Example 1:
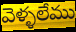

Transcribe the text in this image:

వెళ్ళలేము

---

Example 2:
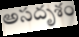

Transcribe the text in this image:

అసదృశం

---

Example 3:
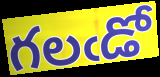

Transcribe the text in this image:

గలఁడో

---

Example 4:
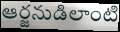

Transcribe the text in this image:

ఆర్జనుడిలాంటి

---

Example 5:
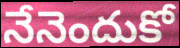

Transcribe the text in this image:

నేనెందుకో